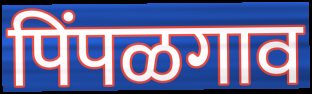
पिंपळगाव